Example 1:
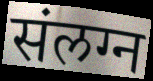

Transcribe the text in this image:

संलग्‍न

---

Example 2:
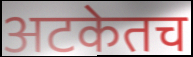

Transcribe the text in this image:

अटकेतच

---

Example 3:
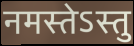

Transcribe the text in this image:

नमस्तेऽस्तु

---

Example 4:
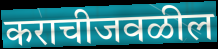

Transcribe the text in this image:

कराचीजवळील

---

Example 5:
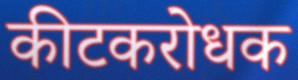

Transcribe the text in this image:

कीटकरोधक